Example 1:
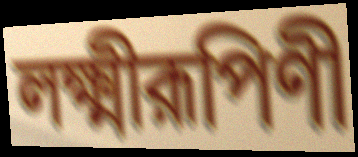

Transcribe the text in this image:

লক্ষ্মীরূপিণী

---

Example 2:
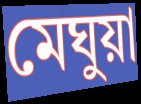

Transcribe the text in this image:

মেঘুয়া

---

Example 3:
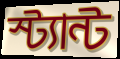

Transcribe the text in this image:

স্ট্যান্ট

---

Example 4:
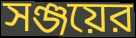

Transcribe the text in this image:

সঞ্জয়ের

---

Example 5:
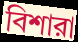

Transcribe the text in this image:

বিশারা